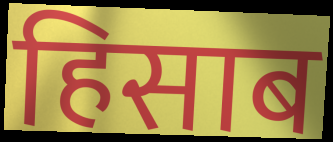
हिसाब